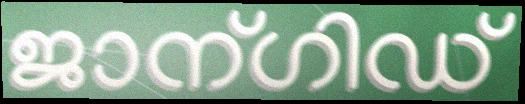
ജാന്ഗിഡ്